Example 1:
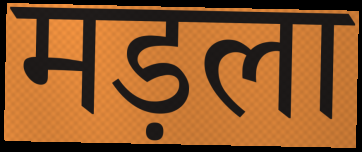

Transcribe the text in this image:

मड़ला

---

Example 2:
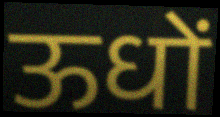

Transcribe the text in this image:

ऊधों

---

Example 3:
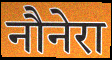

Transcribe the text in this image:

नौनेरा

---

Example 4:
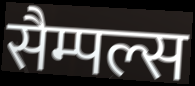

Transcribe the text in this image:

सैम्‍पल्‍स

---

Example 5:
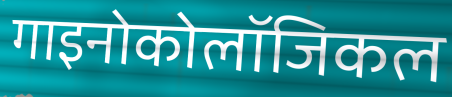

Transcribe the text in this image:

गाइनोकोलॉजिकल